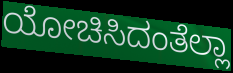
ಯೋಚಿಸಿದಂತೆಲ್ಲಾ